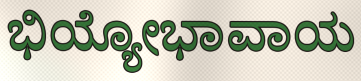
ಭಿಯ್ಯೋಭಾವಾಯ